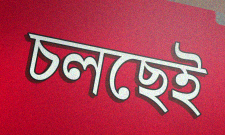
চলছেই